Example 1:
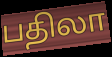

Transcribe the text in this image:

பதிலா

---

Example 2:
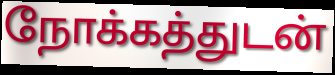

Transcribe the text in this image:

நோக்கத்துடன்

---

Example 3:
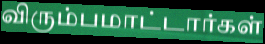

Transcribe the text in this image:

விரும்பமாட்டார்கள்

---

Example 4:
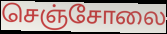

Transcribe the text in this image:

செஞ்சோலை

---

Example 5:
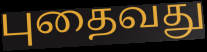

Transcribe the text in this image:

புதைவது